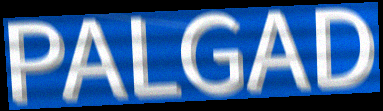
PALGAD